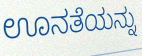
ಊನತೆಯನ್ನು